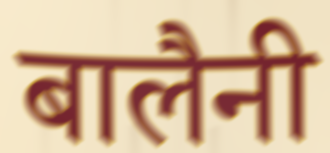
बालैनी